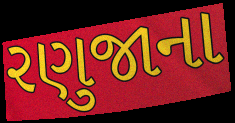
રણુજાના